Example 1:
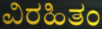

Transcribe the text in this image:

ವಿರಹಿತಂ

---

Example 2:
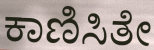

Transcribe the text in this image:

ಕಾಣಿಸಿತೇ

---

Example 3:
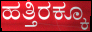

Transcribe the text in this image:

ಹತ್ತಿರಕ್ಕೂ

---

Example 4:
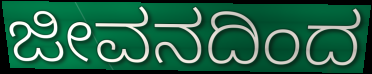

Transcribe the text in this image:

ಜೀವನದಿಂದ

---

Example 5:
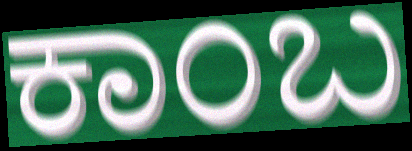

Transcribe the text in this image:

ಕಾಂಬ